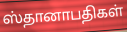
ஸ்தானாபதிகள்